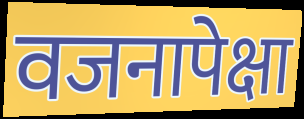
वजनापेक्षा